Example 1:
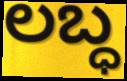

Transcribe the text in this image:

ಲಬ್ಧ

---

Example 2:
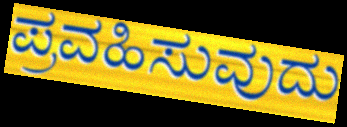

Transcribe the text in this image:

ಪ್ರವಹಿಸುವುದು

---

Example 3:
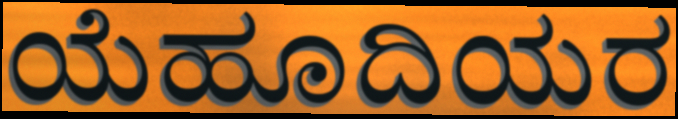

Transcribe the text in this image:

ಯೆಹೂದಿಯರ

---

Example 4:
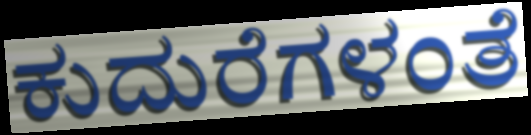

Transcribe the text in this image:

ಕುದುರೆಗಳಂತೆ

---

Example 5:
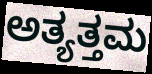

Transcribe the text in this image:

ಅತ್ಯತ್ತಮ